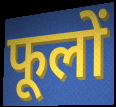
फूलों